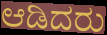
ಆಡಿದರು